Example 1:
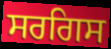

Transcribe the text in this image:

ਸਰਗਿਸ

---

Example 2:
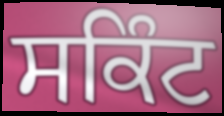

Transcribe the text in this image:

ਸਕਿੰਟ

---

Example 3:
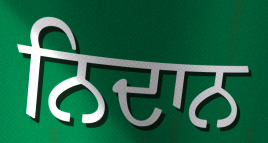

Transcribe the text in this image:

ਨਿਦਾਨ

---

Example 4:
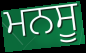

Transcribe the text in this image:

ਮਨਸੂ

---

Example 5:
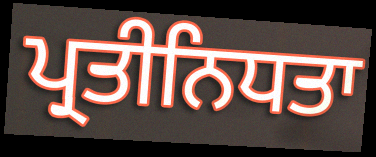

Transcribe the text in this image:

ਪ੍ਰਤੀਨਿਧਤਾ